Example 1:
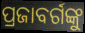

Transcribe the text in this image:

ପ୍ରଜାବର୍ଗଙ୍କୁ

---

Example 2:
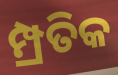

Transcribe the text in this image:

ମ୍ପ୍ରତିକ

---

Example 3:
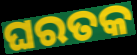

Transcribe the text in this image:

ଘରତକ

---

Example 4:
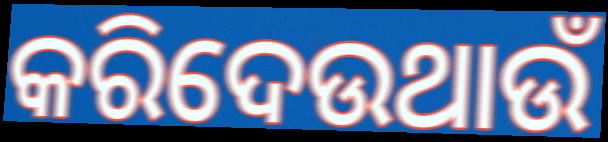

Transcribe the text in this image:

କରିଦେଉଥାଉଁ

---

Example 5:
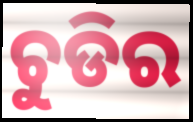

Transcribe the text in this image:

ଚୁଡିର